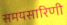
समयसारिणी